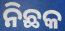
ନିଛକ